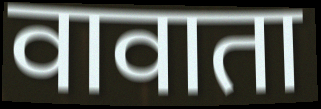
वावाता